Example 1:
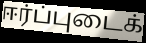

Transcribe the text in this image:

ஈர்ப்புடைக்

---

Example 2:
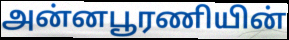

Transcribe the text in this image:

அன்னபூரணியின்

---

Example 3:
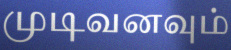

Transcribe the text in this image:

முடிவனவும்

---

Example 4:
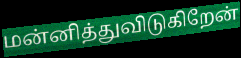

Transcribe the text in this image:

மன்னித்துவிடுகிறேன்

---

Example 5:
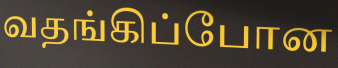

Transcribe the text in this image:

வதங்கிப்போன